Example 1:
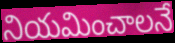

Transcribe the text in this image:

నియమించాలనే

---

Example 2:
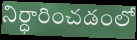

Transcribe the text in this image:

నిర్ధారించడంలో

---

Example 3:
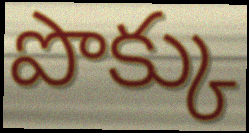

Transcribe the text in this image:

పొక్కు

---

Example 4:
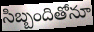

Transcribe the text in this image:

సిబ్బందితోనూ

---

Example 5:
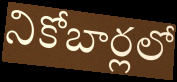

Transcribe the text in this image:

నికోబార్లలో